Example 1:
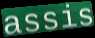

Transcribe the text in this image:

assis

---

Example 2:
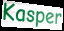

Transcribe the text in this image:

Kasper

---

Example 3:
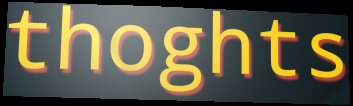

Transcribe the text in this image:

thoghts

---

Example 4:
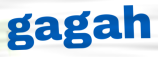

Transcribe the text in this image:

gagah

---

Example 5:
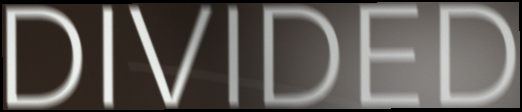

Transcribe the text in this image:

DIVIDED